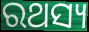
ରଥସ୍ୟ